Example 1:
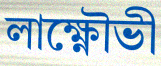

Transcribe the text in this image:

লাক্ষ্ণৌভী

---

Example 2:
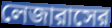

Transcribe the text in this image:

লেজারাসের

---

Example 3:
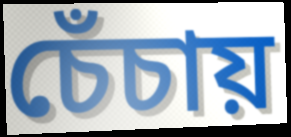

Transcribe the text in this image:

চেঁচায়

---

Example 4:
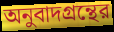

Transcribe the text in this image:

অনুবাদগ্রন্থের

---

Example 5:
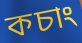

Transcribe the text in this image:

কচাং